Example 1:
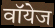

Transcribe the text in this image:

वॉयेज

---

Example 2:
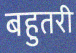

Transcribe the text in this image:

बहुतरी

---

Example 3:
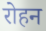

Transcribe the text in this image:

रोहन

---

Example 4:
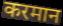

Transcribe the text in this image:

करमान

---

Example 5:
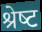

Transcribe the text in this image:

श्रेष्‍ट